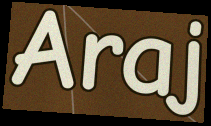
Araj